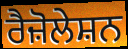
ਰੈਜ਼ੋਲੇਸ਼ਨ